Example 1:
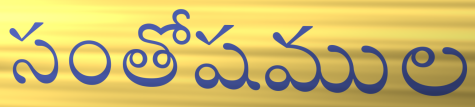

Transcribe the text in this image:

సంతోషముల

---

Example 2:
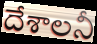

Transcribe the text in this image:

దేశాలనీ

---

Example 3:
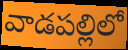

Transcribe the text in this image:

వాడపల్లిలో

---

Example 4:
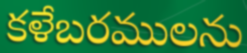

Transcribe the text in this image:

కళేబరములను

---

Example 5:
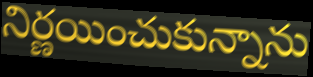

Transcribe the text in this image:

నిర్ణయించుకున్నాను